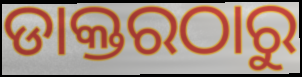
ଡାକ୍ତରଠାରୁ